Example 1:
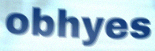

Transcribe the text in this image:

obhyes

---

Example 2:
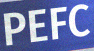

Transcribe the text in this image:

PEFC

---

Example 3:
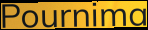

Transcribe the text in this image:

Pournima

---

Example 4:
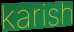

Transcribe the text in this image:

karish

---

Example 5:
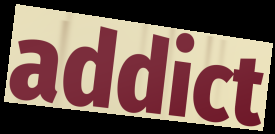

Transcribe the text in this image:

addict